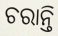
ଚରାନ୍ତି